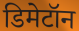
डिमेटॉन